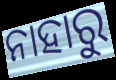
ନାହାରୁ